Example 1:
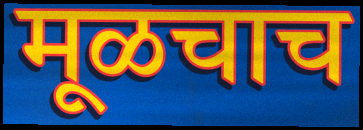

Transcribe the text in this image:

मूळचाच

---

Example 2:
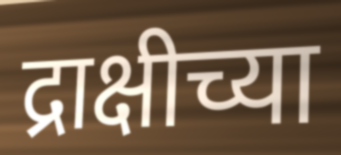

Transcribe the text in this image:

द्राक्षीच्या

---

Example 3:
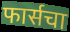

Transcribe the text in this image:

फार्सचा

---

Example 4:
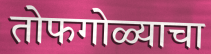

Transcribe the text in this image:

तोफगोळ्याचा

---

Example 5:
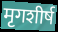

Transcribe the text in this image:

मृगशीर्ष